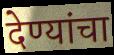
देण्यांचा